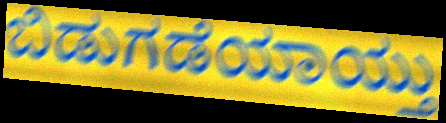
ಬಿಡುಗಡೆಯಾಯ್ತು